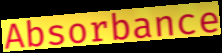
Absorbance